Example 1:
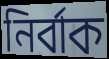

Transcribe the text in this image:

নির্বাক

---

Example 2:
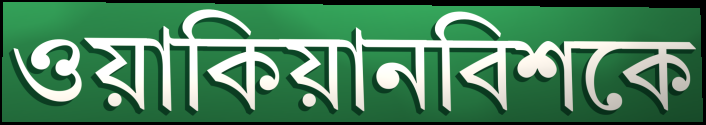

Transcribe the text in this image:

ওয়াকিয়ানবিশকে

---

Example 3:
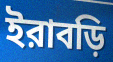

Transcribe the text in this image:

ইরাবড়ি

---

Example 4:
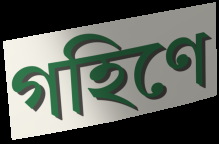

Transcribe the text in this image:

গহিণে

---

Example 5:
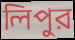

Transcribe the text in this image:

লিপুর